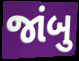
જાંબુ